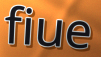
fiue